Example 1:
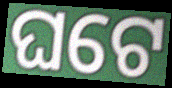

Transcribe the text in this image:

ଘଟେ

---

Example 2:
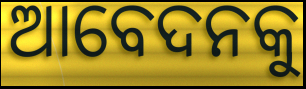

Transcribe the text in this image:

ଆବେଦନକୁ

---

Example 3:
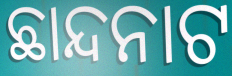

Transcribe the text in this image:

ଛାନ୍ଦନାଟ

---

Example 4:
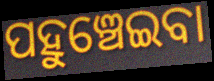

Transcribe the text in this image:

ପହୁଞ୍ଚେଇବା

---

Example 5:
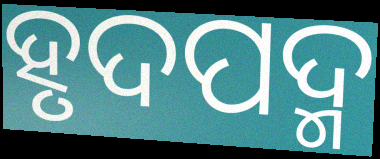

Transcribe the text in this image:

ହୃଦପଦ୍ମ